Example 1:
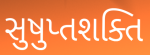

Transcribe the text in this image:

સુષુપ્તશક્તિ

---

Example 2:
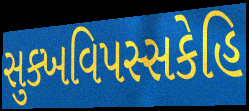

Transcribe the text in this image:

સુક્ખવિપસ્સકેહિ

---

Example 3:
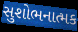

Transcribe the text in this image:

સુશોભનાત્મક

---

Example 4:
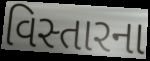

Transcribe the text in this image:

વિસ્તારના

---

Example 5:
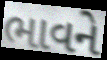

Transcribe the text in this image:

ભાવને